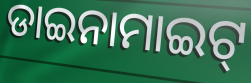
ଡାଇନାମାଇଟ୍